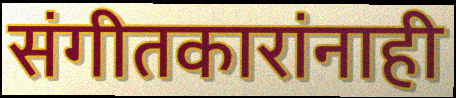
संगीतकारांनाही